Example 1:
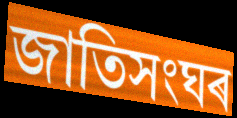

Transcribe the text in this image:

জাতিসংঘৰ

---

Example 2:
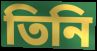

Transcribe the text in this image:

তিনি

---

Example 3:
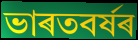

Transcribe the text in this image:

ভাৰতবৰ্ষৰ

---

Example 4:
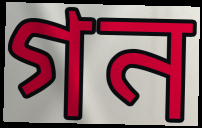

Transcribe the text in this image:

গন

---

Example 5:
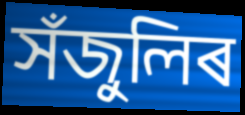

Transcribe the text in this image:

সঁজুলিৰ